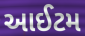
આઈટમ